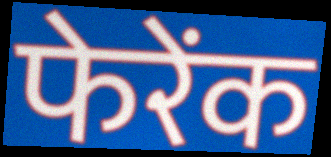
फेरेंक